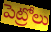
పెట్రోలు